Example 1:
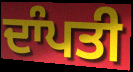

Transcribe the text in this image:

ਦਾੰਪਤੀ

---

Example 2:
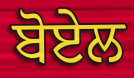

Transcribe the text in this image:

ਬੋਏਲ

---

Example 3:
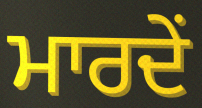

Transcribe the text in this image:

ਮਾਰਦੇਂ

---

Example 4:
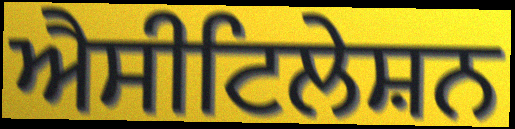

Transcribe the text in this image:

ਐਸੀਟਿਲੇਸ਼ਨ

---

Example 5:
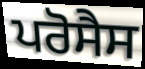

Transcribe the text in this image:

ਪਰੋਸੈਸ